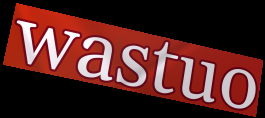
wastuo